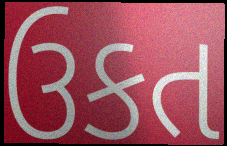
ઉકત